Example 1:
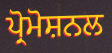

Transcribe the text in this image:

ਪ੍ਰੋਮੋਸ਼ਨਲ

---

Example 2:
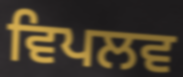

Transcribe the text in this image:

ਵਿਪਲਵ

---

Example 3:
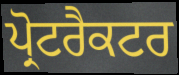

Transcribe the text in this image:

ਪ੍ਰੋਟਰੈਕਟਰ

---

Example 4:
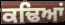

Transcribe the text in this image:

ਕਢਿਆਂ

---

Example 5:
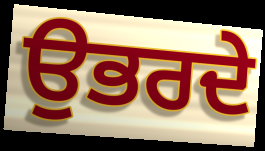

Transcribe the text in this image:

ਉਭਰਦੇ